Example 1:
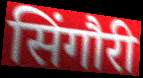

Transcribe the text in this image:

सिंगौरी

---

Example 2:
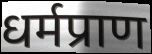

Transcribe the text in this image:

धर्मप्राण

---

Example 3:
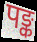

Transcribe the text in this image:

पङ्क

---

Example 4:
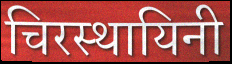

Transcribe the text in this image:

चिरस्थायिनी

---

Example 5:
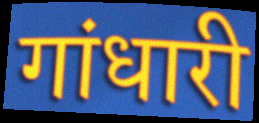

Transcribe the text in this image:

गांधारी